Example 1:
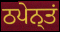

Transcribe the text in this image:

ਠਪੇਨ੍ਤਂ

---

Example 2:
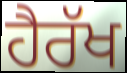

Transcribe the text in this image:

ਹੈਰੱਖ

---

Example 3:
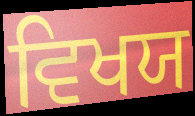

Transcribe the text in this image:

ਵਿਖਯ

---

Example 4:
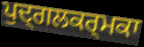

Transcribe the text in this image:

ਪੁਦ੍ਗਲਕਰ੍ਮਕਾ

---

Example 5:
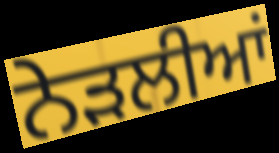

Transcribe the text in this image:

ਨੇੜਲੀਆਂ